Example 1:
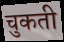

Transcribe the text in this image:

चुकती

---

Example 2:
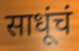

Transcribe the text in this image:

साधूंचं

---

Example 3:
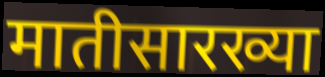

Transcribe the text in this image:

मातीसारख्या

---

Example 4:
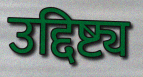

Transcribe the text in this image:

उद्दिष्ट्य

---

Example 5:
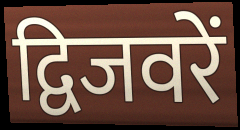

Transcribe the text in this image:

द्विजवरें